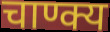
चाण्क्य